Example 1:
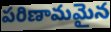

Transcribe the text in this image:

పరిణామమైన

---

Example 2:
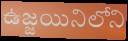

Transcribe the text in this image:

ఉజ్జయినిలోని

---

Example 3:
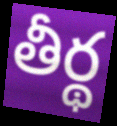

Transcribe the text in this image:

తీర్థ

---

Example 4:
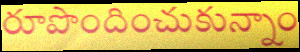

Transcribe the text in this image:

రూపొందించుకున్నాం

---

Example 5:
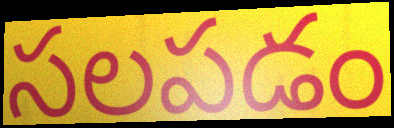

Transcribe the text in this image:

సలపడం